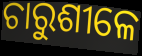
ଚାରୁଶୀଳେ